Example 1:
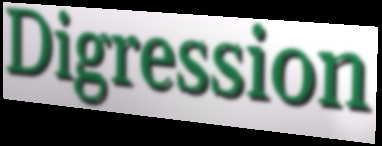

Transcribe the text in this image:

Digression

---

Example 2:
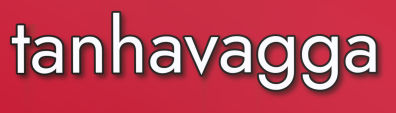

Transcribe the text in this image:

tanhavagga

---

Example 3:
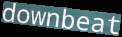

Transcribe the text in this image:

downbeat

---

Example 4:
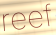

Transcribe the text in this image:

reef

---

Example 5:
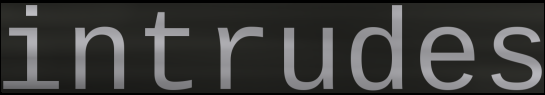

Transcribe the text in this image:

intrudes